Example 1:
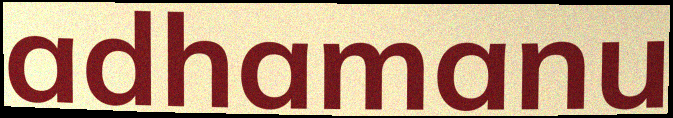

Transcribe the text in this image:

adhamanu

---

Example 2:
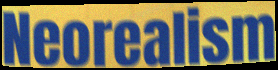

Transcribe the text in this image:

Neorealism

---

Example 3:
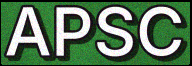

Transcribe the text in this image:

APSC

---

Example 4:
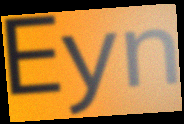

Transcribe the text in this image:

Eyn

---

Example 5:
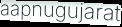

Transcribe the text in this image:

aapnugujarat